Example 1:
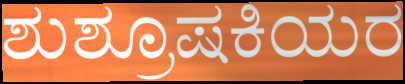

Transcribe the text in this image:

ಶುಶ್ರೂಷಕಿಯರ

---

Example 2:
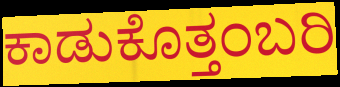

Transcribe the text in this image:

ಕಾಡುಕೊತ್ತಂಬರಿ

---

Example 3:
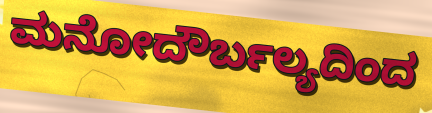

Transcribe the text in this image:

ಮನೋದೌರ್ಬಲ್ಯದಿಂದ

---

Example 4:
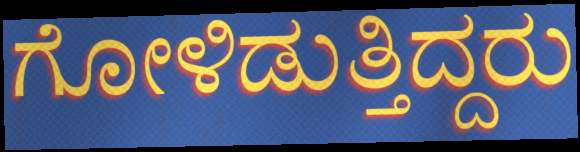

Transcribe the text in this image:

ಗೋಳಿಡುತ್ತಿದ್ದರು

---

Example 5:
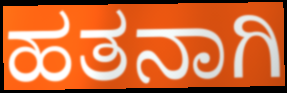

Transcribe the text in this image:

ಹತನಾಗಿ